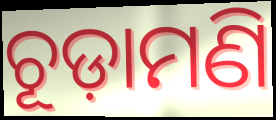
ଚୂଡ଼ାମଣି